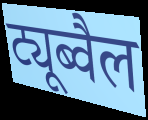
ट्यूब्वैल